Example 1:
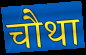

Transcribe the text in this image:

चौथा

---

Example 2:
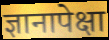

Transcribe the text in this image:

ज्ञानापेक्षा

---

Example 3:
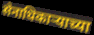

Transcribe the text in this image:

सेनाधिकाऱ्याच्या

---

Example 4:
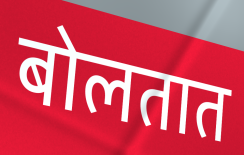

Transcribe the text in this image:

बोलतात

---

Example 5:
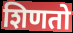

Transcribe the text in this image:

शिणतो